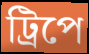
ট্রিপে